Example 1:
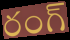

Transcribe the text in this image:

రంగ్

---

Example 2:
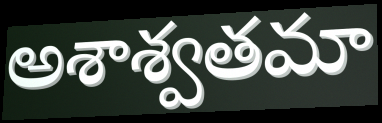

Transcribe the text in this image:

అశాశ్వతమా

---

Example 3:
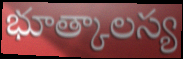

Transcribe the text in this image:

భూత్కాలస్య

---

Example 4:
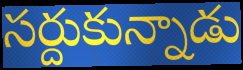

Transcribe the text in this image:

సర్దుకున్నాడు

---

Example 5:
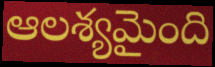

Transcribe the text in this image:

ఆలశ్యమైంది